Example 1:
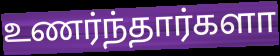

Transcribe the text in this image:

உணர்ந்தார்களா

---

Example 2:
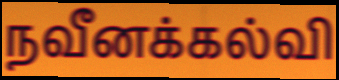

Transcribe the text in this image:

நவீனக்கல்வி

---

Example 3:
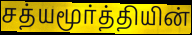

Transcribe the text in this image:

சத்யமூர்த்தியின்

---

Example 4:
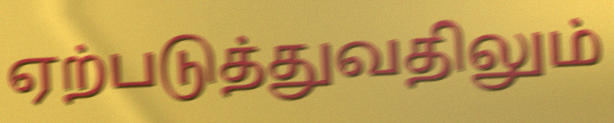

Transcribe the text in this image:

ஏற்படுத்துவதிலும்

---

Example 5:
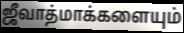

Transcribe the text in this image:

ஜீவாத்மாக்களையும்